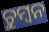
ଚୁମ୍ୱନ